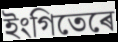
ইংগিতেৰে